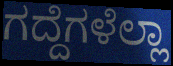
ಗದ್ದೆಗಳೆಲ್ಲಾ